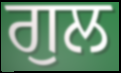
ਗੁਲ